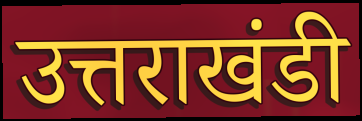
उत्तराखंडी